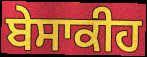
ਬੇਸਾਕੀਹ